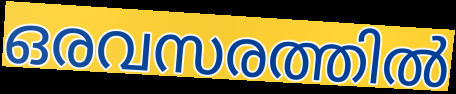
ഒരവസരത്തിൽ